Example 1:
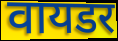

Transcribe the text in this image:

वायडर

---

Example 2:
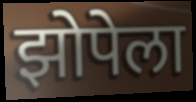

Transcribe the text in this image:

झोपेला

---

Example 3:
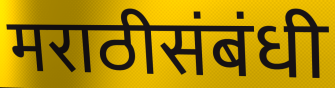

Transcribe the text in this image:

मराठीसंबंधी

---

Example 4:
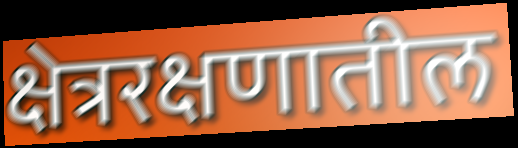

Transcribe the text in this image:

क्षेत्ररक्षणातील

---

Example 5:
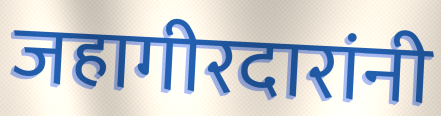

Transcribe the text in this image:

जहागीरदारांनी